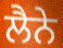
ਲੈਨੇ